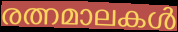
രത്നമാലകൾ